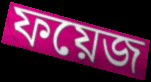
ফয়েজ